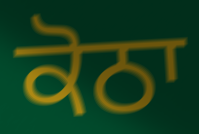
ਕੋਠਾ